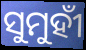
ସୁମୁହୀଁ